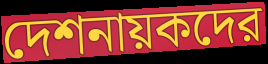
দেশনায়কদের